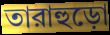
তারাহুড়ো